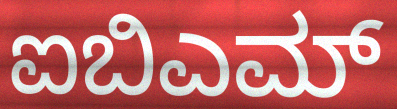
ಐಬಿಎಮ್